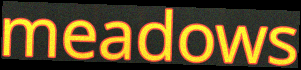
meadows